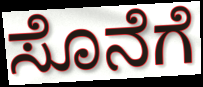
ಸೊನೆಗೆ